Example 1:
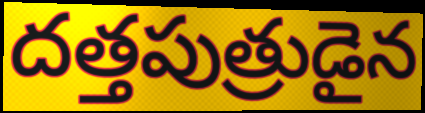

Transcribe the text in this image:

దత్తపుత్రుడైన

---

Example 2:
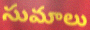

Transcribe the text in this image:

సుమాలు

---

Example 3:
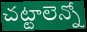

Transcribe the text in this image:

చట్టాలెన్నో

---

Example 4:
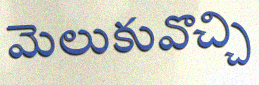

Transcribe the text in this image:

మెలుకువొచ్చి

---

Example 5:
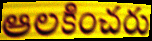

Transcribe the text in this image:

ఆలకించరు